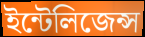
ইন্টেলিজেন্স